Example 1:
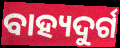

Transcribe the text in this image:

ବାହ୍ୟଦୁର୍ଗ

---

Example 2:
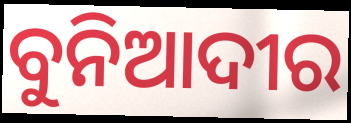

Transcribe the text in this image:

ବୁନିଆଦୀର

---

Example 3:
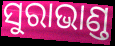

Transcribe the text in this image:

ସୁରାଭାଣ୍ଡ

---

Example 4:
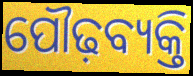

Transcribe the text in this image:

ପୌଢ଼ବ୍ୟକ୍ତି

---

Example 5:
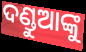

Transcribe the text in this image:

ଦଣ୍ଡୁଆଙ୍କୁ